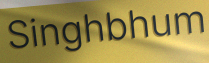
Singhbhum